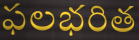
ఫలభరిత